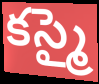
కస్మై